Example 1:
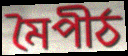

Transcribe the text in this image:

মৈপীঠ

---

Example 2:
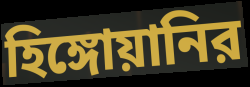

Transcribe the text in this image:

হিঙ্গোয়ানির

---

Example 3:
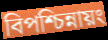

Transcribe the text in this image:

বিপশ্চিন্নায়ং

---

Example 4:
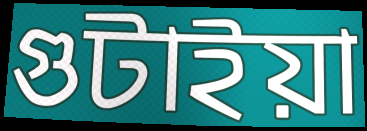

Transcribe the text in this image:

গুটাইয়া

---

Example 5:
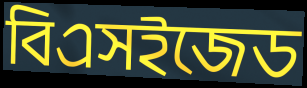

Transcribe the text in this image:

বিএসইজেড